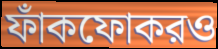
ফাঁকফোকরও